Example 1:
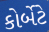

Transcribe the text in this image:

કોર્બેટે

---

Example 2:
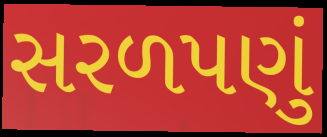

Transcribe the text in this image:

સરળપણું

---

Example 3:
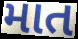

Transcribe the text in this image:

માત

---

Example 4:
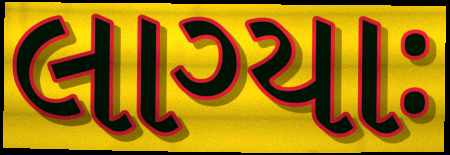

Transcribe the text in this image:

લાગ્યાઃ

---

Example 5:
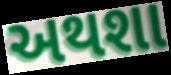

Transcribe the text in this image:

અથશા